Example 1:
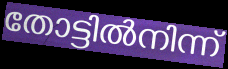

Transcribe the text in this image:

തോട്ടിൽനിന്ന്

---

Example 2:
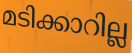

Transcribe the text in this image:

മടിക്കാറില്ല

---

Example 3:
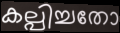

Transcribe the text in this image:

കല്പിച്ചതോ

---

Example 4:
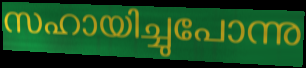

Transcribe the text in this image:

സഹായിച്ചുപോന്നു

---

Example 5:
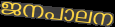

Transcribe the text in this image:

ജനപാലന